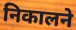
निकालने